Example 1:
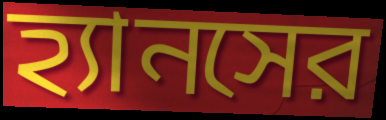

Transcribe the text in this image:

হ্যানসের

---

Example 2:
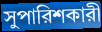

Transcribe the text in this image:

সুপারিশকারী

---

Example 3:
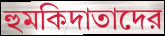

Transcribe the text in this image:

হুমকিদাতাদের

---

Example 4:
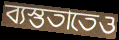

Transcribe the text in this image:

ব্যস্ততাতেও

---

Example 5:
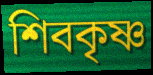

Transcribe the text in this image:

শিবকৃষ্ণ